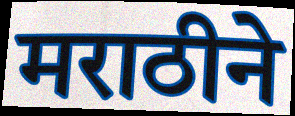
मराठीने